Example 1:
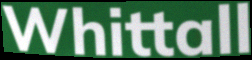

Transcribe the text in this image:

Whittall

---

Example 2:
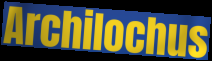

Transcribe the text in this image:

Archilochus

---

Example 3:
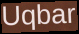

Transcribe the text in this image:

Uqbar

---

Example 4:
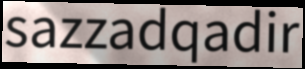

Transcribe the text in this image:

sazzadqadir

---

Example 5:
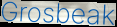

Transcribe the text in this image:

Grosbeak